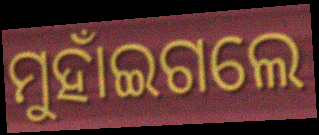
ମୁହାଁଇଗଲେ